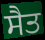
ਸੈਤ